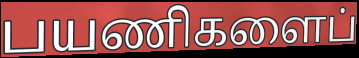
பயணிகளைப்